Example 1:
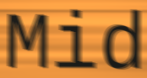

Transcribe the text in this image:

Mid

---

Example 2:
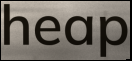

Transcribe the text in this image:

heap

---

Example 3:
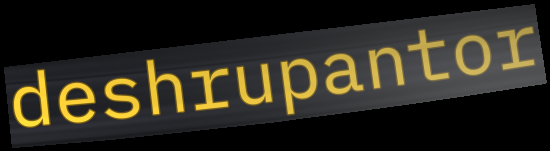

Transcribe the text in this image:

deshrupantor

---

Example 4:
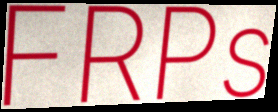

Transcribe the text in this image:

FRPs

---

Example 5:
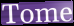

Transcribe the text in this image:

Tome